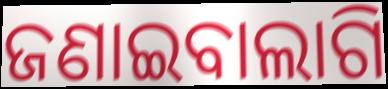
ଜଣାଇବାଲାଗି